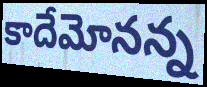
కాదేమోనన్న